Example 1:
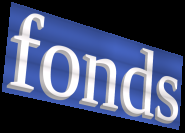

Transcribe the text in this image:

fonds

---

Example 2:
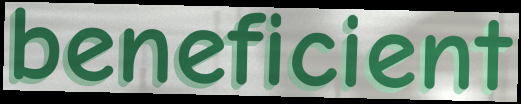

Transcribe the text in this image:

beneficient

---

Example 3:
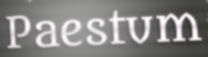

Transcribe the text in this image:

Paestum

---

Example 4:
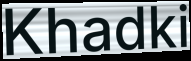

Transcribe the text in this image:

Khadki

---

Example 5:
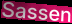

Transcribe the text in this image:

Sassen